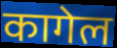
कागेल